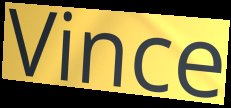
Vince